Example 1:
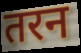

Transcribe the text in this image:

तरन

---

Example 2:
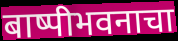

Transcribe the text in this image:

बाष्पीभवनाचा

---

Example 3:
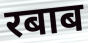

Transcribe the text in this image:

रबाब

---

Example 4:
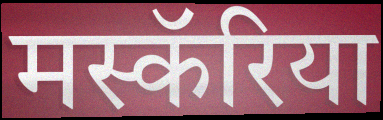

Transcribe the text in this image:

मस्कॅरिया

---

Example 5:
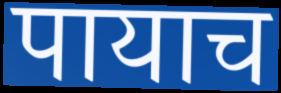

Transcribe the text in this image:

पायाच